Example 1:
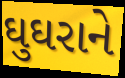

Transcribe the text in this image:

ઘુઘરાને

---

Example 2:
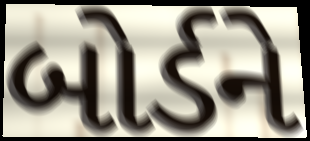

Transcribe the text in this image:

બોર્ડને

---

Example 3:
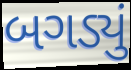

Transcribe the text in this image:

બગડ્યું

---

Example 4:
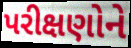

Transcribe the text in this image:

પરીક્ષણોને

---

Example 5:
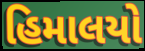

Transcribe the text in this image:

હિમાલયો